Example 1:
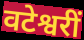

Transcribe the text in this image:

वटेश्वरीं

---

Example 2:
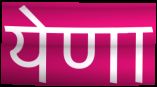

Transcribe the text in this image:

येणा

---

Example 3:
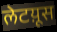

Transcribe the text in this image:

लेटय़ूस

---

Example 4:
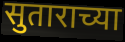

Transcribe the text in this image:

सुताराच्या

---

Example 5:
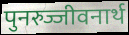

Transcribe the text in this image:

पुनरुज्जीवनार्थ